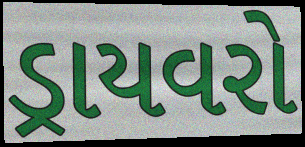
ડ્રાયવરો